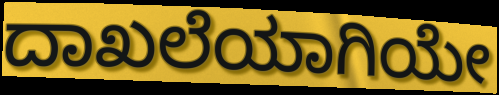
ದಾಖಲೆಯಾಗಿಯೇ